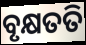
ବୃକ୍ଷତତି